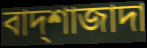
বাদ্শাজাদা